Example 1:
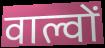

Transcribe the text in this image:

वाल्वों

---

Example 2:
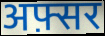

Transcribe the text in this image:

अफ़्सर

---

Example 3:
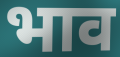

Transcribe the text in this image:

भाव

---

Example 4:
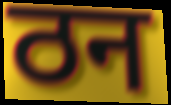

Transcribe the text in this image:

ठन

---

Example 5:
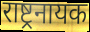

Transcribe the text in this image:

राष्ट्रनायक